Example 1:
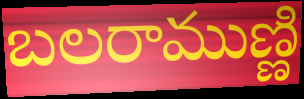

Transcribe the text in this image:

బలరాముణ్ణి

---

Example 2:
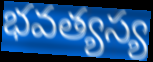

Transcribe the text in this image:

భవత్యస్య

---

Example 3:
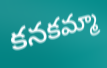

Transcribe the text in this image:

కనకమ్మా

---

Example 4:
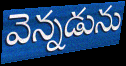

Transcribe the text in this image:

వెన్నడును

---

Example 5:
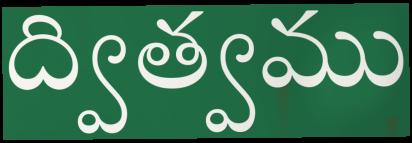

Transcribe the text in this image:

ద్విత్వము